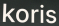
koris